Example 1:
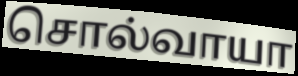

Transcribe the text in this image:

சொல்வாயா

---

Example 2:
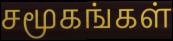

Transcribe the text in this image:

சமூகங்கள்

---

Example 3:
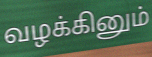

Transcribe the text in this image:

வழக்கினும்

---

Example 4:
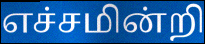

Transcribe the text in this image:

எச்சமின்றி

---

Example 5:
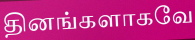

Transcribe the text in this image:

தினங்களாகவே